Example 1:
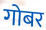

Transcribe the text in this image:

गोबर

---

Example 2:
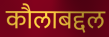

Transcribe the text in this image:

कौलाबद्दल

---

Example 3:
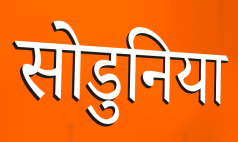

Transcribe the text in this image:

सोडुनिया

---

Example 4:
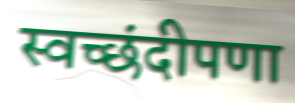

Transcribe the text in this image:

स्वच्छंदीपणा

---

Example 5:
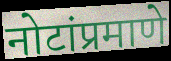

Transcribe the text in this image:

नोटांप्रमाणे